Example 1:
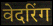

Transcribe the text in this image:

वेदरिंग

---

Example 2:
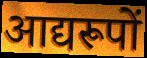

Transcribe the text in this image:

आद्यरूपों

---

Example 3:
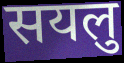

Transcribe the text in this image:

सयलु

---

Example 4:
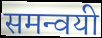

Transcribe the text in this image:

समन्वयी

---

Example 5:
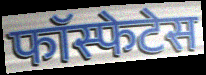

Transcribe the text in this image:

फॉस्फेटेस